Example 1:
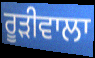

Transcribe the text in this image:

ਰੂਡ਼ੀਵਾਲਾ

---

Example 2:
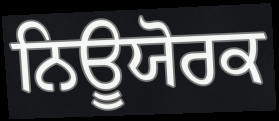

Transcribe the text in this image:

ਨਿਊਯੋਰਕ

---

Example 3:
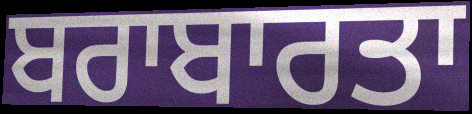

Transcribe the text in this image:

ਬਰਾਬਾਰਤਾ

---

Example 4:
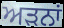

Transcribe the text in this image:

ਅੜਨਾਂ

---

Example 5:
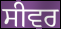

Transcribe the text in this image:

ਸੀਵਰ